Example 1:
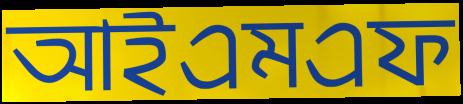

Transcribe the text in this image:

আইএমএফ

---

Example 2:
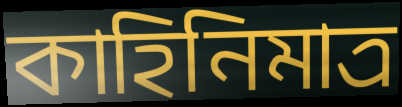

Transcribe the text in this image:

কাহিনিমাত্র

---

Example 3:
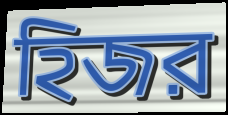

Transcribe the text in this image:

হিজর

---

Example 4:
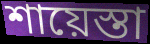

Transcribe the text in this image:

শায়েস্তা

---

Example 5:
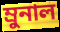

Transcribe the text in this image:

ম্রুনাল